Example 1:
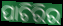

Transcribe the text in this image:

ପାଚିରିର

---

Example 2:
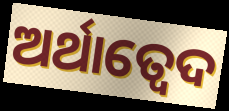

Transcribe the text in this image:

ଅର୍ଥାତ୍ବେଦ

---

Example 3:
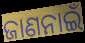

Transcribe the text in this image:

ଜାଣନାଇଁ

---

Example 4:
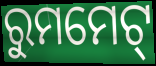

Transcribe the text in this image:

ରୁମମେଟ୍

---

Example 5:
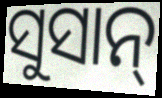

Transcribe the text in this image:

ସୁସାନ୍